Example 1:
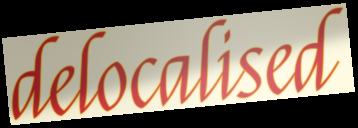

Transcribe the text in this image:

delocalised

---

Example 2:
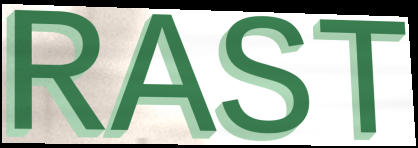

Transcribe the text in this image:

RAST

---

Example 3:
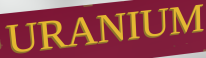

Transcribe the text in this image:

URANIUM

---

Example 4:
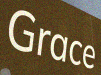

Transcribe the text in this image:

Grace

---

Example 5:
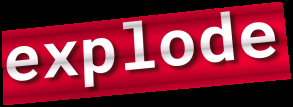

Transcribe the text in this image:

explode